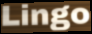
Lingo